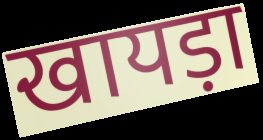
खायड़ा